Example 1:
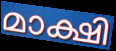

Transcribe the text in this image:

മാക്ഷി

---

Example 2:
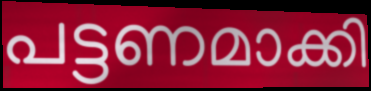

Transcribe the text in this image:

പട്ടണമാക്കി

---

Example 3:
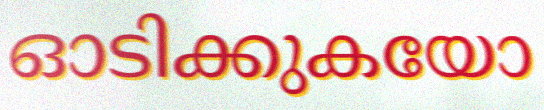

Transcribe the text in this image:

ഓടിക്കുകയോ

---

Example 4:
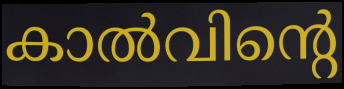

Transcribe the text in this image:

കാൽവിന്റെ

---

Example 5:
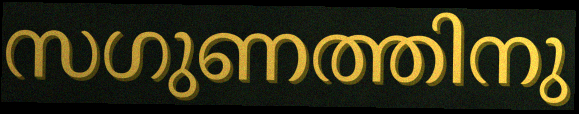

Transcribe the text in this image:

സഗുണത്തിനു